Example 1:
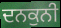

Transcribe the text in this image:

ਦਨਕੁਨੀ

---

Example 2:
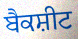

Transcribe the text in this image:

ਬੈਕਸ਼ੀਟ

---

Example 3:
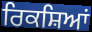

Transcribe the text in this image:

ਰਿਕਸ਼ਿਆਂ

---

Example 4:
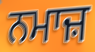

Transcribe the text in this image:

ਨਮਾਜ਼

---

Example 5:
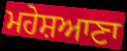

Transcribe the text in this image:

ਮਹੇਸ਼ਆਣਾ